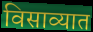
विसाव्यात